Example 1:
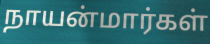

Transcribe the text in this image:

நாயன்மார்கள்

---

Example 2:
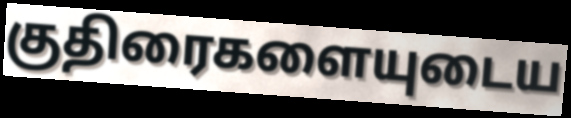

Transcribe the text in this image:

குதிரைகளையுடைய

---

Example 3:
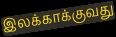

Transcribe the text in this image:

இலக்காக்குவது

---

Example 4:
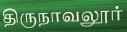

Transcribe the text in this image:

திருநாவலூர்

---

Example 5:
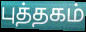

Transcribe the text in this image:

புத்தகம்